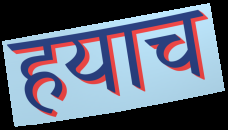
हयाच